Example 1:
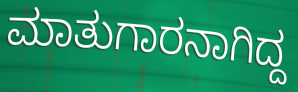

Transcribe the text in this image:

ಮಾತುಗಾರನಾಗಿದ್ದ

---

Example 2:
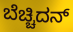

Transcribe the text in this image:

ಬೆಚ್ಚಿದನ್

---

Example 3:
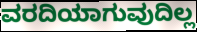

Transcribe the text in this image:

ವರದಿಯಾಗುವುದಿಲ್ಲ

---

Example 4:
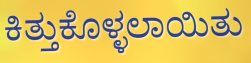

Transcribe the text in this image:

ಕಿತ್ತುಕೊಳ್ಳಲಾಯಿತು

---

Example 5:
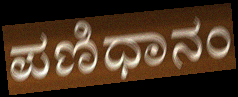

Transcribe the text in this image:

ಪಣಿಧಾನಂ